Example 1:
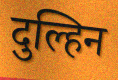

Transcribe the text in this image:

दुल्हिन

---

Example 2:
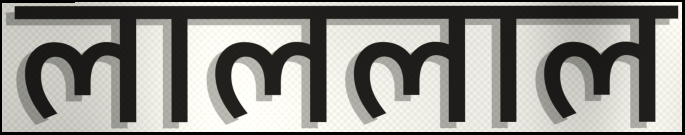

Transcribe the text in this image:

लाललाल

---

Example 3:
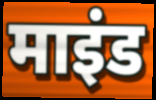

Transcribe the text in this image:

माइंड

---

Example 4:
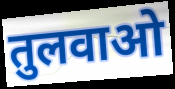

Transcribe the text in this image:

तुलवाओ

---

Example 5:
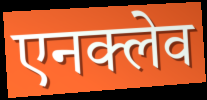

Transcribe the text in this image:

एनक्लेव